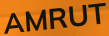
AMRUT